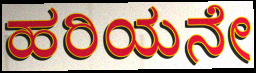
ಹರಿಯನೇ